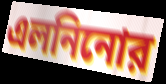
এলনিনোর